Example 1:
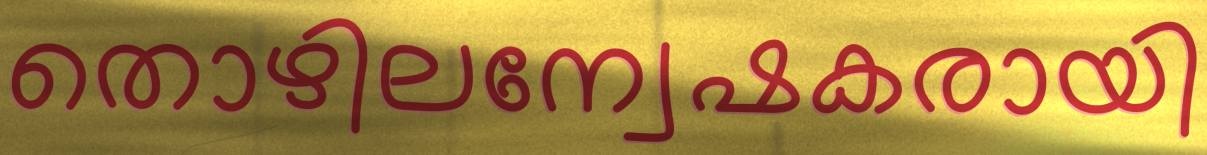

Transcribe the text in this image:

തൊഴിലന്വേഷകരായി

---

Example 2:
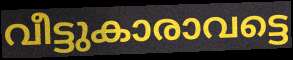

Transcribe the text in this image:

വീട്ടുകാരാവട്ടെ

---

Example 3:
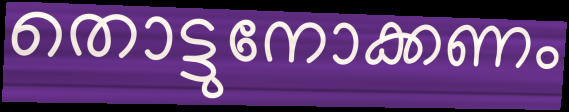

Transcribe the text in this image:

തൊട്ടുനോക്കണം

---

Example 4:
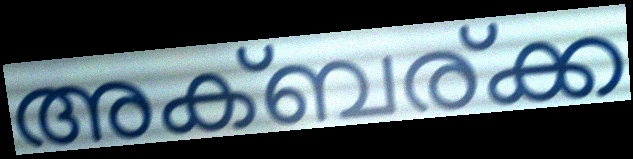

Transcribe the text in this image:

അക്ബര്ക്ക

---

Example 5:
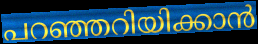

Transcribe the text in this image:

പറഞ്ഞറിയിക്കാൻ